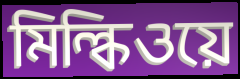
মিল্কিওয়ে